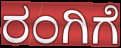
ರಂಗಿಗೆ